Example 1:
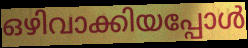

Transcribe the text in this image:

ഒഴിവാക്കിയപ്പോൾ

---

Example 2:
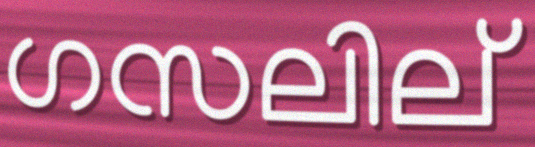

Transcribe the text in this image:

ഗസലില്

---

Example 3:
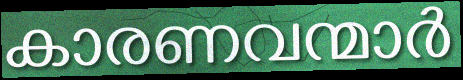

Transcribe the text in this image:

കാരണവന്മാർ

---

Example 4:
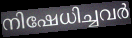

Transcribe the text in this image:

നിഷേധിച്ചവർ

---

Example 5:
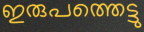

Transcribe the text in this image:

ഇരുപത്തെട്ടു